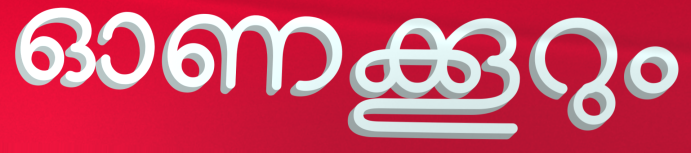
ഓണക്കൂറും